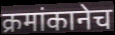
क्रमांकानेच